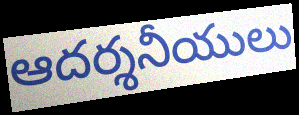
ఆదర్శనీయులు